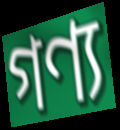
গণ্য